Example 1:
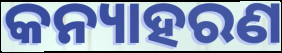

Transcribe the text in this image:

କନ୍ୟାହରଣ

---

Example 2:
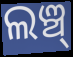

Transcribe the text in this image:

ଲଞ୍ଚ୍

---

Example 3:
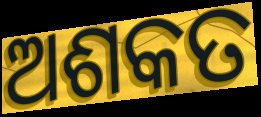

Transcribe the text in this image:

ଅଶକତ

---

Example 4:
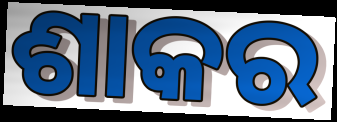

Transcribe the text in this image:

ଶାକର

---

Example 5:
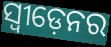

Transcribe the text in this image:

ସ୍ଵୀଡ଼େନର